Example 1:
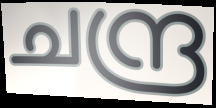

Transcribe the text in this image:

ചന്ദ്ര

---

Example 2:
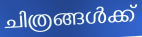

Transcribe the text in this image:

ചിത്രങ്ങൾക്ക്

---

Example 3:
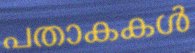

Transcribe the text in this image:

പതാകകൾ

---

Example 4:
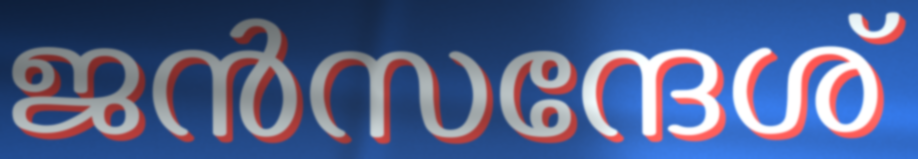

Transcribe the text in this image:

ജൻസന്ദേശ്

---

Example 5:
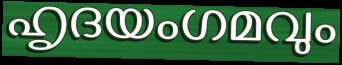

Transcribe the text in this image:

ഹൃദയംഗമവും